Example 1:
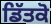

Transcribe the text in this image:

ਡਿੱਤਕੋ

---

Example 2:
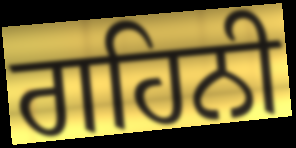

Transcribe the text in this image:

ਗਹਿਨੀ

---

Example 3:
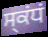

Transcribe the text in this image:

ਸ੍ਕਂਧਂ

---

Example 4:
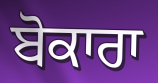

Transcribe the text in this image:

ਬੋਕਾਰਾ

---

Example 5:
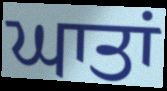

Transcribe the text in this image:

ਘਾਤਾਂ